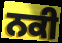
ਨਕੀ